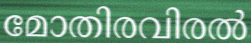
മോതിരവിരൽ